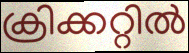
ക്രിക്കറ്റിൽ